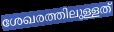
ശേഖരത്തിലുള്ളത്